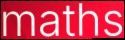
maths